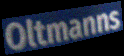
Oltmanns